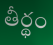
తీర్థం